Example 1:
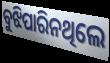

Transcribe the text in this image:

ବୁଝିପାରିନଥିଲେ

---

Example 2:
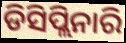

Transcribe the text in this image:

ଡିସିପ୍ଲିନାରି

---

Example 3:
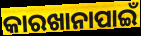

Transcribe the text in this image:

କାରଖାନାପାଇଁ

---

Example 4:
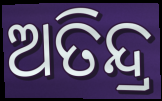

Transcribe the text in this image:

ଅତିନ୍ଦ୍ର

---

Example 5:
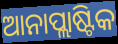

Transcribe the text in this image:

ଆନାପ୍ଲାଷ୍ଟିକ